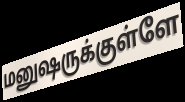
மனுஷருக்குள்ளே